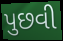
પુછવી